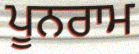
ਪੂਨਰਾਮ